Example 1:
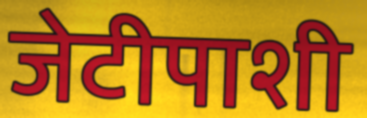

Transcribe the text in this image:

जेटीपाशी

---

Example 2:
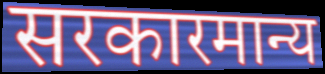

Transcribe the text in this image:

सरकारमान्य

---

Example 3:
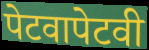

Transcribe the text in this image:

पेटवापेटवी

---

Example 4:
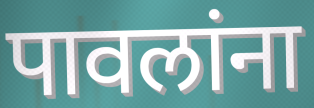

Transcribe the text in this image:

पावलांना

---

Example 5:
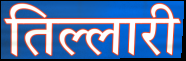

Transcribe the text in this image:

तिल्लारी